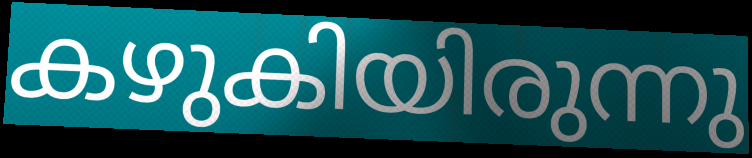
കഴുകിയിരുന്നു